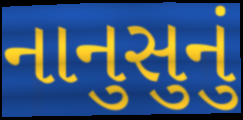
નાનુસુનું